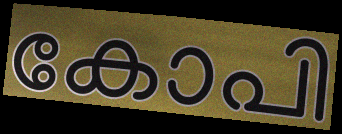
കോപി